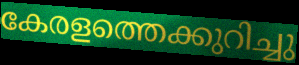
കേരളത്തെക്കുറിച്ചു